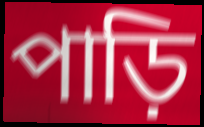
পাড়ি